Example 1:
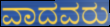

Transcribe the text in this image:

ವಾದವರು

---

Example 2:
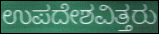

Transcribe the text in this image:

ಉಪದೇಶವಿತ್ತರು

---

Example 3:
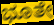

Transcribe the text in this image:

ಭೂತೇ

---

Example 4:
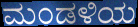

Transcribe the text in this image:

ಮಂಡಳಿಯ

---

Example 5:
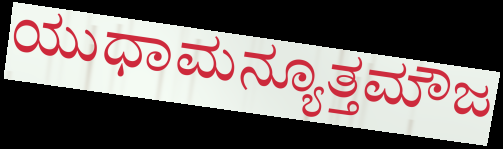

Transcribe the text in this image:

ಯುಧಾಮನ್ಯೂತ್ತಮೌಜ